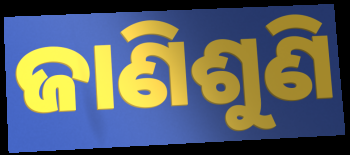
ଜାଣିଶୁଣି